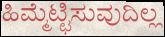
ಹಿಮ್ಮೆಟ್ಟಿಸುವುದಿಲ್ಲ